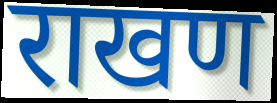
राखण